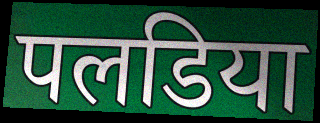
पलडिया